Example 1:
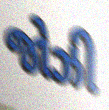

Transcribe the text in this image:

જોઝી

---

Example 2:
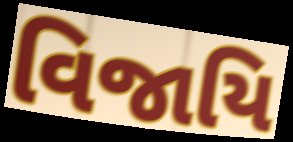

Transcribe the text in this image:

વિજાયિ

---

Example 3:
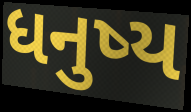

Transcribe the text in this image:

ધનુષ્ય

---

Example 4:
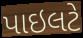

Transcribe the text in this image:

પાઇલટે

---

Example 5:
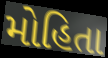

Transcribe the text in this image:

મોહિતા